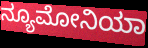
ನ್ಯೂಮೋನಿಯಾ